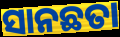
ସାନଛତା